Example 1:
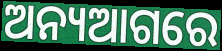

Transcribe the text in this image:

ଅନ୍ୟଆଗରେ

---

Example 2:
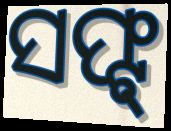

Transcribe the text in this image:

ସଫ୍ଟ୍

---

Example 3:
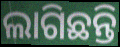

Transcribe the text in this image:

ଲାଗିଛନ୍ତି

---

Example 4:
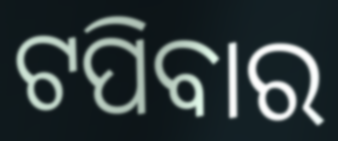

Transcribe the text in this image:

ଟପିବାର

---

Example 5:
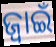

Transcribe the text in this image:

ଜ୍ବାଇଁ